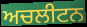
ਅਚਲੀਟਨ